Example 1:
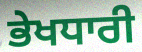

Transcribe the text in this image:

ਭੇਖਧਾਰੀ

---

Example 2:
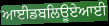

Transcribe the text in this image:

ਆਈਡਬਲਿਊਏਆਈ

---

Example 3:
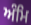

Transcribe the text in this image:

ਅੰਮਿ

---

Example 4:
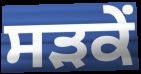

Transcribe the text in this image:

ਸੜਕੇਂ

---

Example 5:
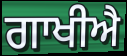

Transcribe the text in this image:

ਗਾਖੀਐ